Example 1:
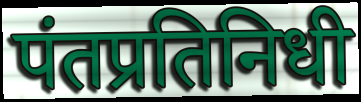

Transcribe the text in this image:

पंतप्रतिनिधी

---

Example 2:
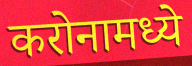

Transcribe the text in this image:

करोनामध्ये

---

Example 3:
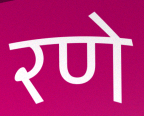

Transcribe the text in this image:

रणे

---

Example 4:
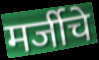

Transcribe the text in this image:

मर्जीचे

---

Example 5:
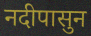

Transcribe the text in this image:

नदीपासुन